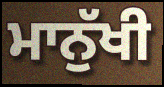
ਮਾਨੁੱਖੀ